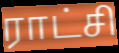
ராட்சி